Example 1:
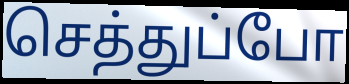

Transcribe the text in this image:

செத்துப்போ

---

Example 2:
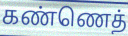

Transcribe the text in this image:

கண்ணெத்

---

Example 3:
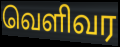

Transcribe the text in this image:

வெளிவர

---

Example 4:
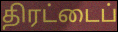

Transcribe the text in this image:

திரட்டைப்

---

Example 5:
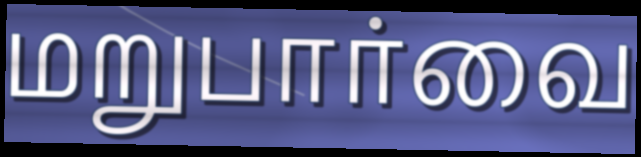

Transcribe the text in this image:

மறுபார்வை